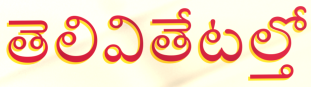
తెలివితేటల్తో